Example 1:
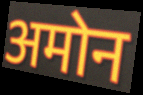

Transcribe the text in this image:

अमोन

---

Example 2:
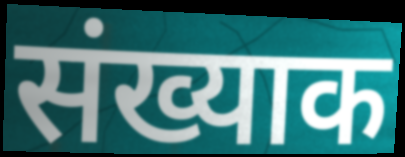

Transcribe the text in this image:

संख्याक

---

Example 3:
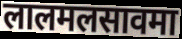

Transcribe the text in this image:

लालमलसावमा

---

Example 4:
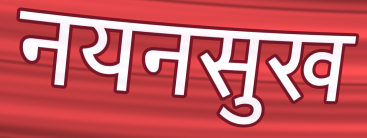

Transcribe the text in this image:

नयनसुख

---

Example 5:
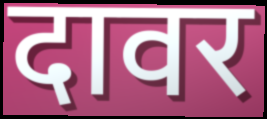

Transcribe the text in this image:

दावर